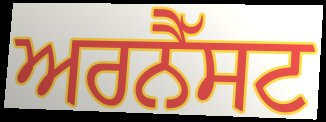
ਅਰਨੈੱਸਟ